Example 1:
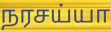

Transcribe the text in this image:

நரசய்யா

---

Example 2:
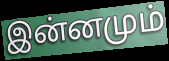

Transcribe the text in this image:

இன்னமும்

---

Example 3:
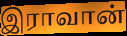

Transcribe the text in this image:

இராவான்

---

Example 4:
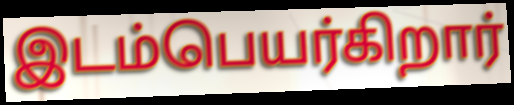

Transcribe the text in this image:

இடம்பெயர்கிறார்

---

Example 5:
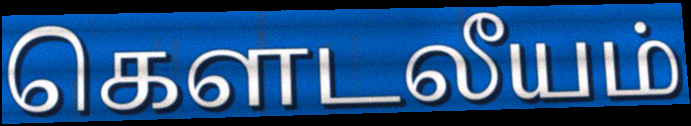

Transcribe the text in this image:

கெளடலீயம்